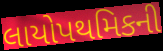
લાયોપથમિકની